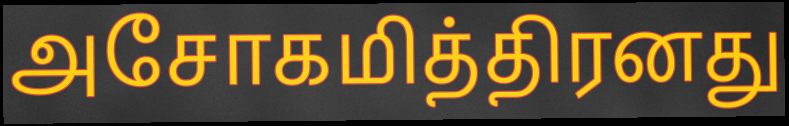
அசோகமித்திரனது